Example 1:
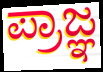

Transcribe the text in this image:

ಪ್ರಾಜ್ಞ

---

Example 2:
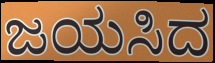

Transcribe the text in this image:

ಜಯಸಿದ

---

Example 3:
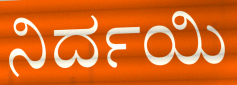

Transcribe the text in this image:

ನಿರ್ದಯಿ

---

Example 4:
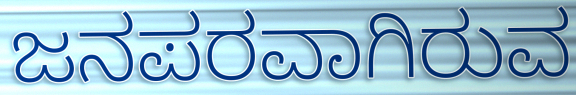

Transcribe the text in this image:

ಜನಪರವಾಗಿರುವ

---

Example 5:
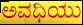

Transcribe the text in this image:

ಅವಧಿಯು